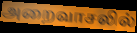
அறைவாசலில்